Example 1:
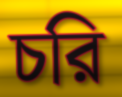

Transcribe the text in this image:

চরি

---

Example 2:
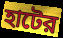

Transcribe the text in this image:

হাটের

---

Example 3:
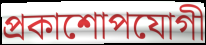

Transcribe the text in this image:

প্রকাশোপযোগী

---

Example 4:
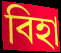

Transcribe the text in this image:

বিহা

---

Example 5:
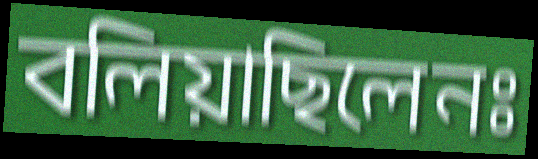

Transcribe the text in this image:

বলিয়াছিলেনঃ